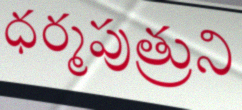
ధర్మపుత్రుని